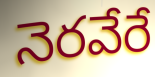
నెరవేరే